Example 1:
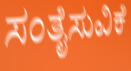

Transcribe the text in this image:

ಸಂತೈಸುವಿಕೆ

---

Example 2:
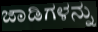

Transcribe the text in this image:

ಜಾಡಿಗಳನ್ನು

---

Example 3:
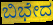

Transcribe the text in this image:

ಬಿಭೇದ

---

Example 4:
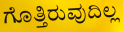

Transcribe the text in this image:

ಗೊತ್ತಿರುವುದಿಲ್ಲ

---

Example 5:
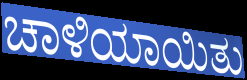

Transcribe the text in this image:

ಚಾಳಿಯಾಯಿತು